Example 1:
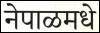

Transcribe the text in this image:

नेपाळमधे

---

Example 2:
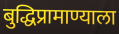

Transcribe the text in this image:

बुद्धिप्रामाण्याला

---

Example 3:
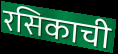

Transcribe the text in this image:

रसिकाची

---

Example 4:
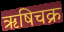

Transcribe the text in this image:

ऋषिचक्र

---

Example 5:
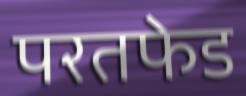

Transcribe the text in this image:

परतफेड